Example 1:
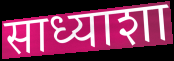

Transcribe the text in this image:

साध्याशा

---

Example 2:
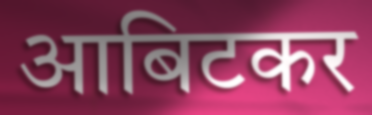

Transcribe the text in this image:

आबिटकर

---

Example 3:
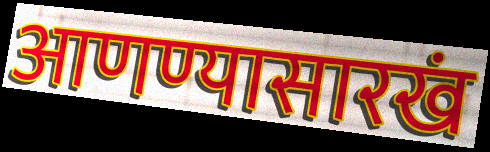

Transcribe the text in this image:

आणण्यासारखं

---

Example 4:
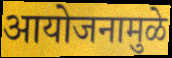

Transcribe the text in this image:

आयोजनामुळे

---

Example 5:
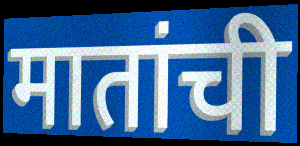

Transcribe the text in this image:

मातांची